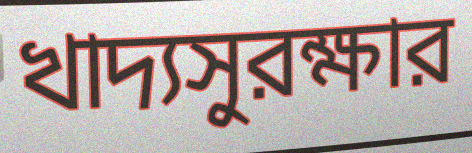
খাদ্যসুরক্ষার